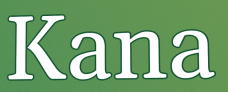
Kana